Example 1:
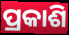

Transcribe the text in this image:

ପ୍ରକାଶି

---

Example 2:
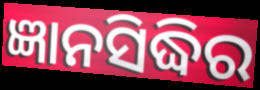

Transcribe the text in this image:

ଜ୍ଞାନସିଦ୍ଧିର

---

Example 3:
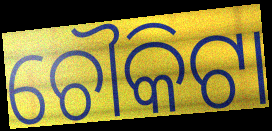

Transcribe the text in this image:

ଚୌକିଟା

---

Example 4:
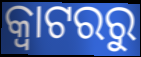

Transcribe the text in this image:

କ୍ୱାଟରରୁ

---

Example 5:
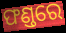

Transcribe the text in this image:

ଫଣ୍ଡରେ